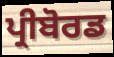
ਪ੍ਰੀਬੋਰਡ